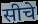
सीचे